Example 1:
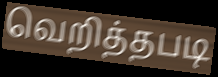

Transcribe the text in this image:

வெறித்தபடி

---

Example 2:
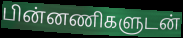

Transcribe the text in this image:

பின்னணிகளுடன்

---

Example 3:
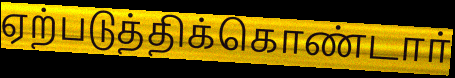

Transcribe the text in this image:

ஏற்படுத்திக்கொண்டார்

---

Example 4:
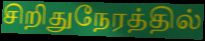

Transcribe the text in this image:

சிறிதுநேரத்தில்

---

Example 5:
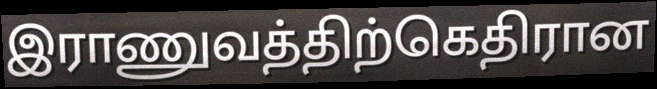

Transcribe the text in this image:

இராணுவத்திற்கெதிரான